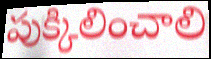
పుక్కిలించాలి